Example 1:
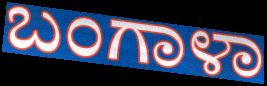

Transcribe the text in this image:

ಬಂಗಾಳಾ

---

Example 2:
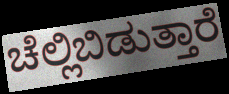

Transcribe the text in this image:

ಚೆಲ್ಲಿಬಿಡುತ್ತಾರೆ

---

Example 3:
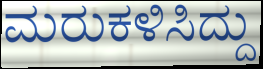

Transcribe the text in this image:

ಮರುಕಳಿಸಿದ್ದು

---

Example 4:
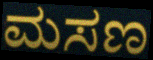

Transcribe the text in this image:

ಮಸಣ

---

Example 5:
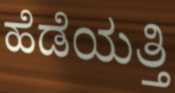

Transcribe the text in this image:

ಹೆಡೆಯತ್ತಿ